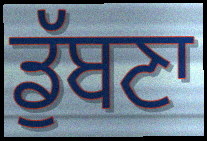
ਡੁੱਬਣਾ